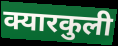
क्यारकुली